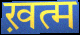
ख़त्म